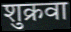
शुक्रवा